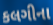
કલગીના